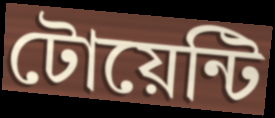
টোয়েন্টি